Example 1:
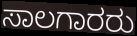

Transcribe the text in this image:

ಸಾಲಗಾರರು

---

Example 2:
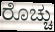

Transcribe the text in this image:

ರೊಚ್ಚು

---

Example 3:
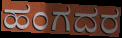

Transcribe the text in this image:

ಹಂಗದರ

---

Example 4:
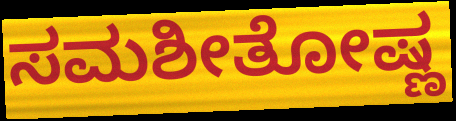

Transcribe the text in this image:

ಸಮಶೀತೋಷ್ಣ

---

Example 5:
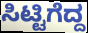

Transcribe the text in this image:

ಸಿಟ್ಟಿಗೆದ್ದ